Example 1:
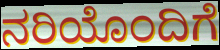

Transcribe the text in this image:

ನರಿಯೊಂದಿಗೆ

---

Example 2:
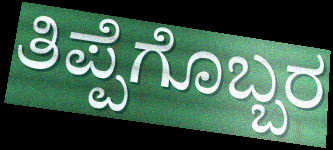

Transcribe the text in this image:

ತಿಪ್ಪೆಗೊಬ್ಬರ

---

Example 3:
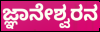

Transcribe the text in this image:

ಜ್ಞಾನೇಶ್ವರನ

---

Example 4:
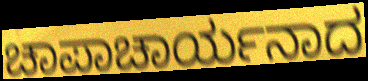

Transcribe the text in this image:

ಚಾಪಾಚಾರ್ಯನಾದ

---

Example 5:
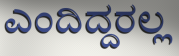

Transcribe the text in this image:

ಎಂದಿದ್ದರಲ್ಲ